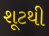
શૂટથી